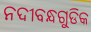
ନଦୀବନ୍ଧଗୁଡିକ